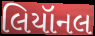
લિયૉનલ